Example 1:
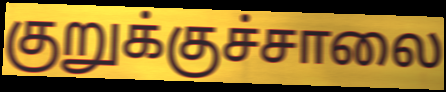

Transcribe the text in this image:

குறுக்குச்சாலை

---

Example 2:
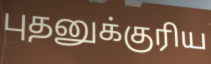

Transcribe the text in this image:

புதனுக்குரிய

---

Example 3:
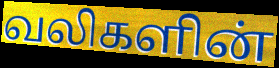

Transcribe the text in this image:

வலிகளின்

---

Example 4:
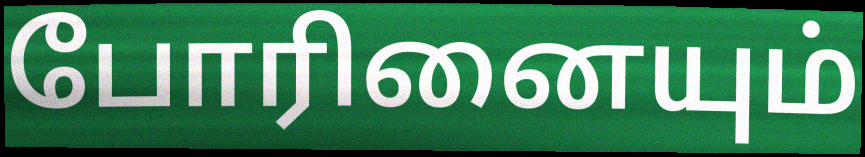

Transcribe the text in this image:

போரினையும்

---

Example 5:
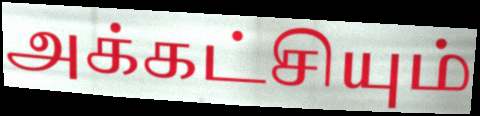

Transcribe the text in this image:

அக்கட்சியும்